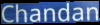
Chandan